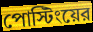
পোস্টিংয়ের